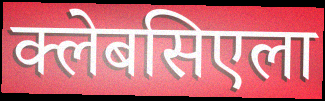
क्लेबसिएला